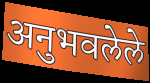
अनुभवलेले